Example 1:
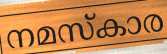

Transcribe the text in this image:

നമസ്കാര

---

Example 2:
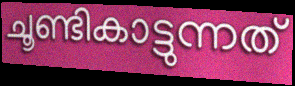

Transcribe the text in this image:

ചൂണ്ടികാട്ടുന്നത്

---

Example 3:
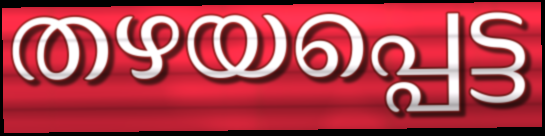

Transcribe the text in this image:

തഴയപ്പെട്ട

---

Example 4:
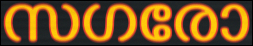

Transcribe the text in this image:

സഗരോ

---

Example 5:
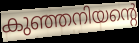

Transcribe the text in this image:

കുഞ്ഞനിയന്റെ